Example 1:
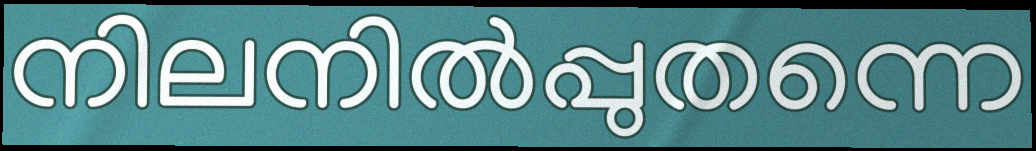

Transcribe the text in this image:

നിലനിൽപ്പുതന്നെ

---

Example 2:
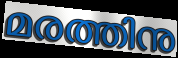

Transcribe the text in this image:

മരത്തിനു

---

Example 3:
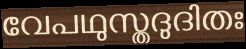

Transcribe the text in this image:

വേപഥുസ്തദുദിതഃ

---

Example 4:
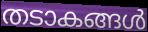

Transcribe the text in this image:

തടാകങ്ങൾ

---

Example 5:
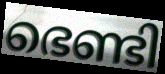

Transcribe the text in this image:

ഭെണ്ടി